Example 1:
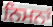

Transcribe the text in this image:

ਨਿਮਨਾਂ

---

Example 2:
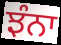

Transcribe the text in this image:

ਝੰਨਾ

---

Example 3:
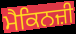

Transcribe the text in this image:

ਮੈਕਿਨਜ਼ੀ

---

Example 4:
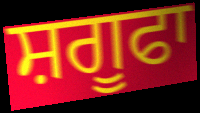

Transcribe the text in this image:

ਸ਼ਗੂਫਾ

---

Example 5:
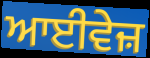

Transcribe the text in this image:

ਆਈਵੇਜ਼